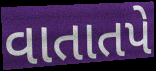
વાતાતપે